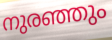
നുരഞ്ഞും